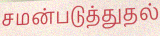
சமன்படுத்துதல்